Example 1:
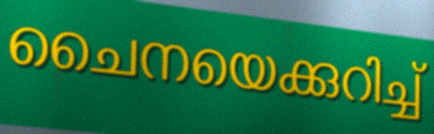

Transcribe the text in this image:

ചൈനയെക്കുറിച്ച്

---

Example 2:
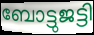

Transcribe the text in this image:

ബോട്ടുജട്ടി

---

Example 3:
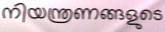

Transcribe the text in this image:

നിയന്ത്രണങ്ങളുടെ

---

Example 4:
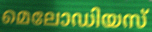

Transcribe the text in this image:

മെലോഡിയസ്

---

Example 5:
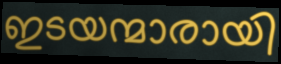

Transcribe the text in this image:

ഇടയന്മാരായി